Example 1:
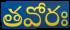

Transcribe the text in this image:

తవోరః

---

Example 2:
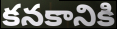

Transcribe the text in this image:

కనకానికి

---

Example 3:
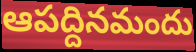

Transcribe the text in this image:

ఆపద్దినమందు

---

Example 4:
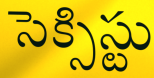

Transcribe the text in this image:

సెక్సిస్టు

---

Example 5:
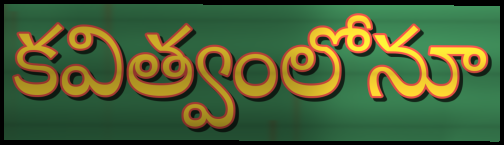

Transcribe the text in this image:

కవిత్వంలోనూ